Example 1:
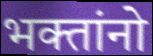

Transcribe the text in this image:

भक्तांनो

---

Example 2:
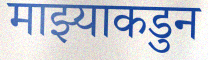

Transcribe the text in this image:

माझ्याकडुन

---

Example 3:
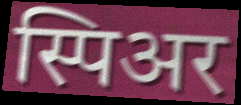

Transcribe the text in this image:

स्पिअर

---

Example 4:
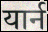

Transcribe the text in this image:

यार्न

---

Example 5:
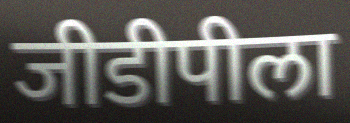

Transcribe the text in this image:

जीडीपीला